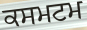
ਕਸਮਟਮ